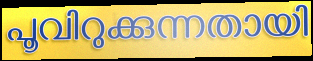
പൂവിറുക്കുന്നതായി